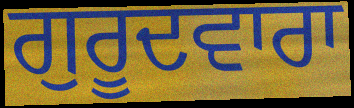
ਗੁਰੂਦਵਾਰਾ